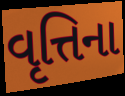
વૃત્તિના